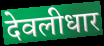
देवलीधार